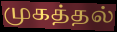
முகத்தல்